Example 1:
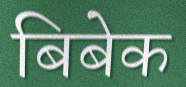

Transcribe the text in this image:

बिबेक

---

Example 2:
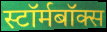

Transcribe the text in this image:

स्टॉर्मबॉक्स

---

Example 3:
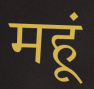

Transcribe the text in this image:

महूं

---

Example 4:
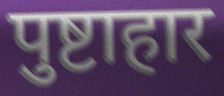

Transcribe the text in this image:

पुष्टाहार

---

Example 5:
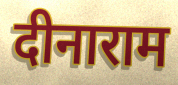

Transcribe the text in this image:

दीनाराम